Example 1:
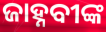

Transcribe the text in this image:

ଜାହ୍ନବୀଙ୍କ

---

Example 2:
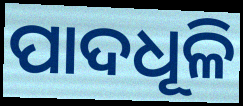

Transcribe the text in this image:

ପାଦଧୂଳି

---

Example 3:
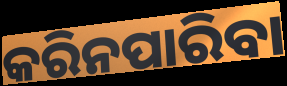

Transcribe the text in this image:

କରିନପାରିବା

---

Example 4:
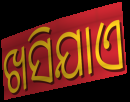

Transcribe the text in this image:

ଖସିଯାଏ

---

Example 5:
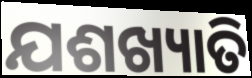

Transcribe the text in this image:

ଯଶଖ୍ୟାତି